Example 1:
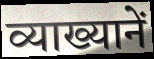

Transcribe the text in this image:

व्याख्यानें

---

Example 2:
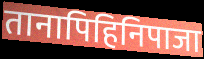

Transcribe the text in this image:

तानापिहिनिपाजा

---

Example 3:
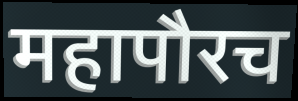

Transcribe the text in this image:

महापौरच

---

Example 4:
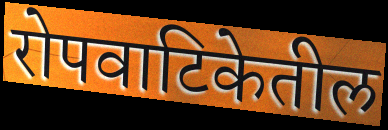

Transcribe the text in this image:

रोपवाटिकेतील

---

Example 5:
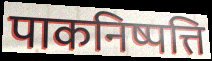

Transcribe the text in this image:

पाकनिष्पत्ति